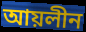
আয়লীন